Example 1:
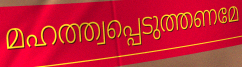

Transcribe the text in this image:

മഹത്ത്വപ്പെടുത്തണമേ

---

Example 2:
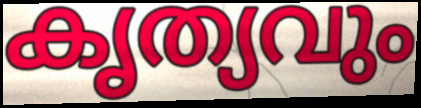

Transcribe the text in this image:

കൃത്യവും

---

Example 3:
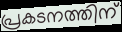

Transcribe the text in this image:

പ്രകടനത്തിന്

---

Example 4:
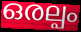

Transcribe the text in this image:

ഒരല്പം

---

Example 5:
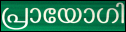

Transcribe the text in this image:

പ്രായോഗി